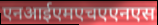
एनआईएमएचएएनएस